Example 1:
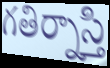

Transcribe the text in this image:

గతిర్నాస్తి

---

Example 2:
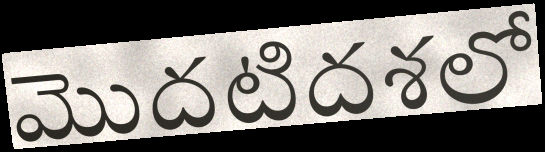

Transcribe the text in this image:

మొదటిదశలో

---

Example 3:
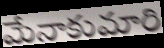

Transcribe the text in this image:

మేనాకుమారి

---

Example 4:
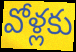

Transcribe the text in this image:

వోళ్లకు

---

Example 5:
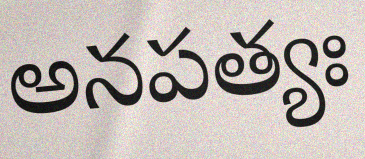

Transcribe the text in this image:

అనపత్యః